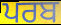
ਪਰਬ